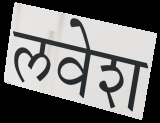
लवेश